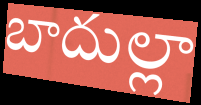
బాదుల్లా